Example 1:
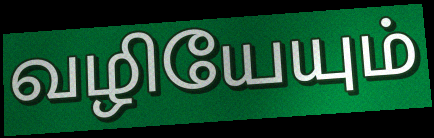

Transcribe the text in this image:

வழியேயும்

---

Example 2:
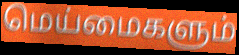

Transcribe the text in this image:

மெய்மைகளும்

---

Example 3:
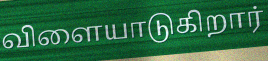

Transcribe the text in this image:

விளையாடுகிறார்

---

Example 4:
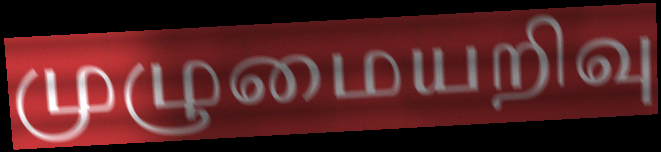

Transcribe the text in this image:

முழுமையறிவு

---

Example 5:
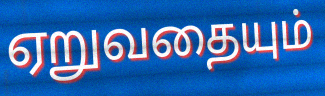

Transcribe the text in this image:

ஏறுவதையும்